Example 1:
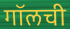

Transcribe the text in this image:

गॉलची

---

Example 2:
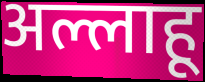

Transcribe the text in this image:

अल्लाहू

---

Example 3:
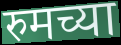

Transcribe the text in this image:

रुमच्या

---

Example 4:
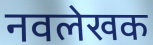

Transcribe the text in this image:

नवलेखक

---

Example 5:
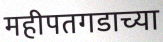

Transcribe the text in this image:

महीपतगडाच्या